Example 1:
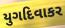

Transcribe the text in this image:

યુગદિવાકર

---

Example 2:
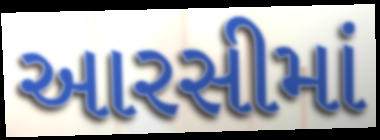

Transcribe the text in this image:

આરસીમાં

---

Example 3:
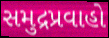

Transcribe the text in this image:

સમુદ્રપ્રવાહો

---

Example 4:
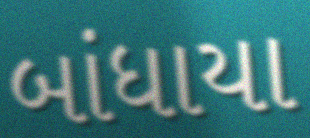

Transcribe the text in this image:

બાંધાયા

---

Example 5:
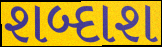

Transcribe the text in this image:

શબ્દાશ